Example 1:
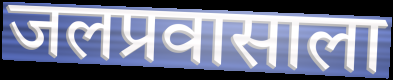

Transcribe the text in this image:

जलप्रवासाला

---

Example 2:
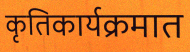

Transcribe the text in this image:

कृतिकार्यक्रमात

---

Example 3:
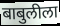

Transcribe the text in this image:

बाबुलीला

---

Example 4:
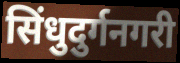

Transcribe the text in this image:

सिंधुदुर्गनगरी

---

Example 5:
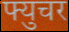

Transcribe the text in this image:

फ्युचर